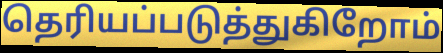
தெரியப்படுத்துகிறோம்